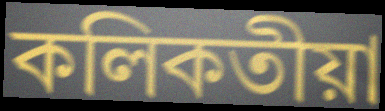
কলিকতীয়া